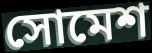
সোমেশ